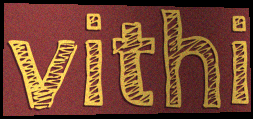
vithi